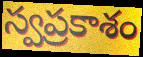
స్వప్రకాశం